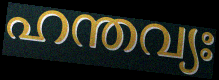
ഹന്തവ്യഃ